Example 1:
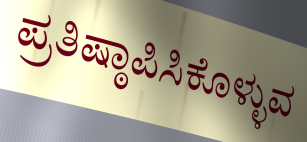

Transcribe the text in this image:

ಪ್ರತಿಷ್ಠಾಪಿಸಿಕೊಳ್ಳುವ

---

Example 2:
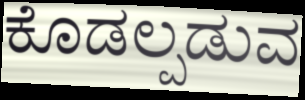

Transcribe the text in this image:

ಕೊಡಲ್ಪಡುವ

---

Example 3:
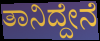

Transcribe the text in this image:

ತಾನಿದ್ದೇನೆ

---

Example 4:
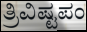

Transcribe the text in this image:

ತ್ರಿವಿಷ್ಟಪಂ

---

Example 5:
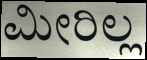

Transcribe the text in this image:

ಮೀರಿಲ್ಲ